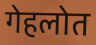
गेहलोत